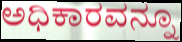
ಅಧಿಕಾರವನ್ನೂ